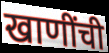
खाणींची